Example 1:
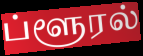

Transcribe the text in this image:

ப்ளூரல்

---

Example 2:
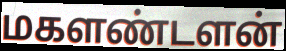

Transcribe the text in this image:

மகளண்டளன்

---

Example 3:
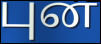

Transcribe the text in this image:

புன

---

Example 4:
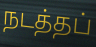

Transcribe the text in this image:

நடத்தப்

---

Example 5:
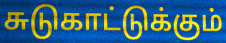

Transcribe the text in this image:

சுடுகாட்டுக்கும்